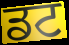
ਡਟ